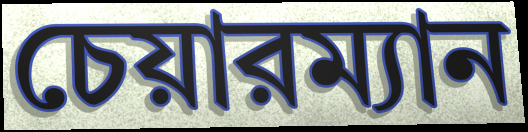
চেয়ারম্যান